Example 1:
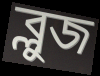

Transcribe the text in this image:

ব্লুজ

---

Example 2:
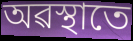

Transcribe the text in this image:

অৱস্থাতে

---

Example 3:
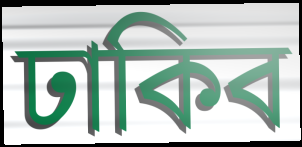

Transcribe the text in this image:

ঢাকিব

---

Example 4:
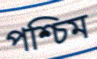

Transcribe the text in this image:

পশ্চিম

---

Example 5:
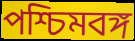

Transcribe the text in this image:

পশ্চিমবঙ্গ